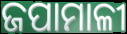
ଜପାମାଳୀ